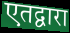
एतद्वारा